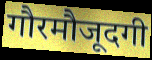
गौरमौजूदगी